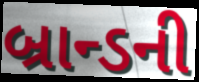
બ્રાન્ડની